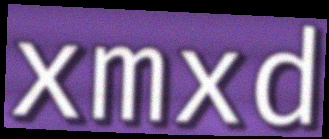
xmxd